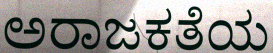
ಅರಾಜಕತೆಯ